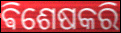
ଵିଶେଷକରି